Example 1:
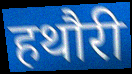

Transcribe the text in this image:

हथौरी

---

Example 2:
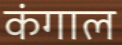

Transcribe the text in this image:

कंगाल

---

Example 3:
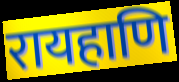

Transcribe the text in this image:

रायहाणि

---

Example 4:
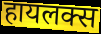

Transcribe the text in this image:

हायलक्स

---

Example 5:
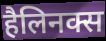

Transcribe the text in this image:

हैलिनक्स